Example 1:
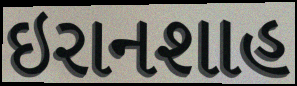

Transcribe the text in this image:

ઇરાનશાહ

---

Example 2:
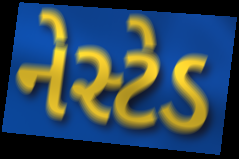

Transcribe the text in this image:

નેસ્ટેડ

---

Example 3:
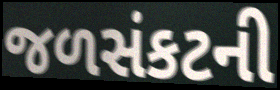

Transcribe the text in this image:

જળસંકટની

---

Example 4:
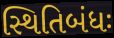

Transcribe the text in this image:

સ્થિતિબંધઃ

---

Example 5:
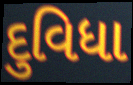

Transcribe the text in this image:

દુવિધા